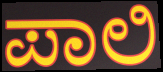
ಪಾಲಿ